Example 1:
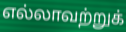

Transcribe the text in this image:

எல்லாவற்றுக்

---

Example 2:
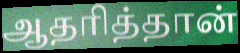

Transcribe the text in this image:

ஆதரித்தான்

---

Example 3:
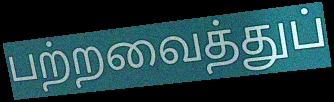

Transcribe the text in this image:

பற்றவைத்துப்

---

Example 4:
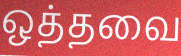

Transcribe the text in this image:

ஒத்தவை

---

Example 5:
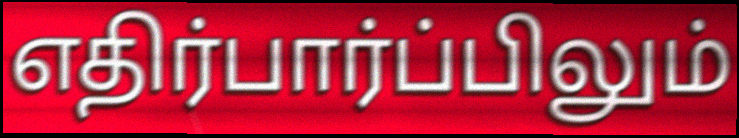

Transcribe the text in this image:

எதிர்பார்ப்பிலும்